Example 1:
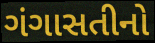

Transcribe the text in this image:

ગંગાસતીનો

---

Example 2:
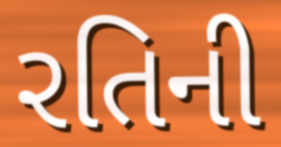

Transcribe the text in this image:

રતિની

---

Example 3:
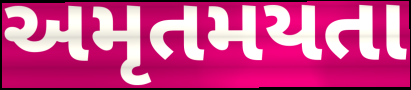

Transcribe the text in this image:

અમૃતમયતા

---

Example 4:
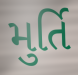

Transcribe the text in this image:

મુર્તિ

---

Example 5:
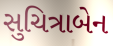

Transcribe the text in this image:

સુચિત્રાબેન